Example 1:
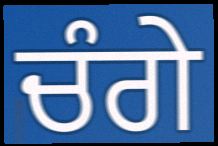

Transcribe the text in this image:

ਚੰਗੇ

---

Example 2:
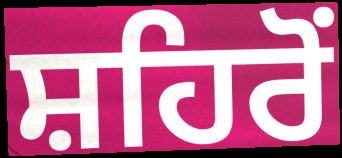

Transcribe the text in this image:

ਸ਼ਹਿਰੋਂ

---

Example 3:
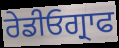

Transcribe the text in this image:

ਰੇਡੀਓਗ੍ਰਾਫ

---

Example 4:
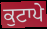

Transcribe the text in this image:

ਕੁਟਾਪੇ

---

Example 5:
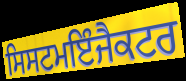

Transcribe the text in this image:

ਸਿਸਟਮਇੰਜੈਕਟਰ